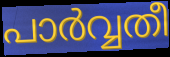
പാർവ്വതീ